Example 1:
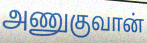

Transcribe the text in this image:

அணுகுவான்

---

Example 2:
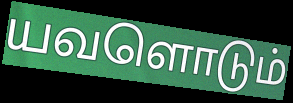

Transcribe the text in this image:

யவளொடும்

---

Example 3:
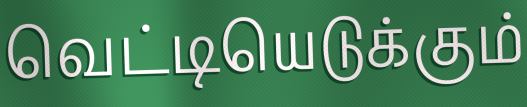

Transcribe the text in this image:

வெட்டியெடுக்கும்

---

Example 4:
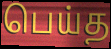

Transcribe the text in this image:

பெய்த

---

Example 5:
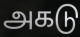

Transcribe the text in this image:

அகடு